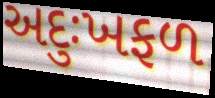
અદુઃખફળ